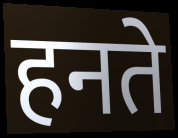
हनते